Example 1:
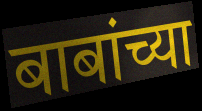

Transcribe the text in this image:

बाबांच्या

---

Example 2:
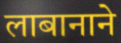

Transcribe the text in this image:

लाबानाने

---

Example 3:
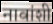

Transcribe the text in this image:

नावांशी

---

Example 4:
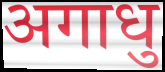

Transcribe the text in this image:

अगाधु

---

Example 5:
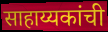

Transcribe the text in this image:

साहाय्यकांची